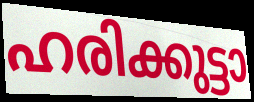
ഹരിക്കുട്ടാ